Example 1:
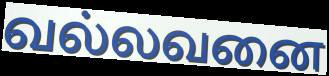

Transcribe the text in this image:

வல்லவனை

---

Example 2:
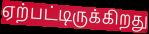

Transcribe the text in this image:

ஏற்பட்டிருக்கிறது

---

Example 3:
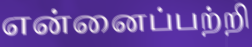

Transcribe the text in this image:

என்னைப்பற்றி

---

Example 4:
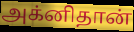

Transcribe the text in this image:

அக்னிதான்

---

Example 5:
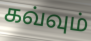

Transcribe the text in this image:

கவ்வும்